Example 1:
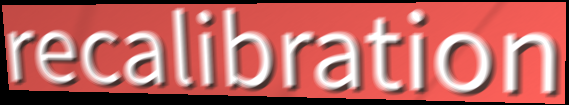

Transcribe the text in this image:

recalibration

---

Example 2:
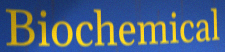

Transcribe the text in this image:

Biochemical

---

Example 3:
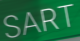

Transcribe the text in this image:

SART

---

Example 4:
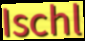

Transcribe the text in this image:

Ischl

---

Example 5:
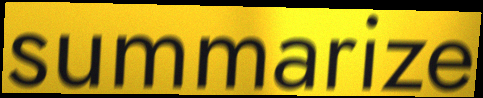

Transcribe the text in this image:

summarize